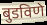
बुडविणे